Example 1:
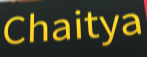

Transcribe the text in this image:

Chaitya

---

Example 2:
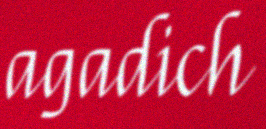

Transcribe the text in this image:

agadich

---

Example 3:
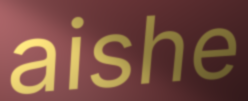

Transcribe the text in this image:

aishe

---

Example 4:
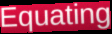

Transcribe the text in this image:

Equating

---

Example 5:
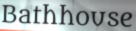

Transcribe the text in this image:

Bathhouse